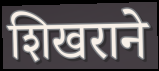
शिखराने